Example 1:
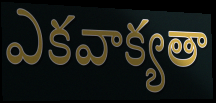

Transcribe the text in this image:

ఎకవాక్యతా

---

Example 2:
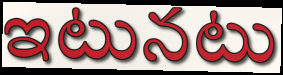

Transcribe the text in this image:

ఇటునటు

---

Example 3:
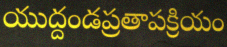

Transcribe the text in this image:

యుద్దండప్రతాపక్రియం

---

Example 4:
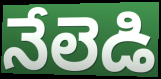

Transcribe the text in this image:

నేలెడి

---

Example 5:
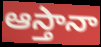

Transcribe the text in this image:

ఆస్తానా